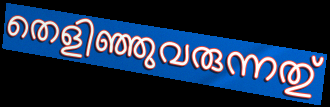
തെളിഞ്ഞുവരുന്നതു്